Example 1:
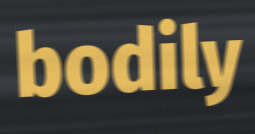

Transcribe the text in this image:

bodily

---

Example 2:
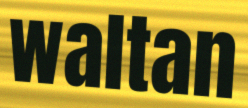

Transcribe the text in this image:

waltan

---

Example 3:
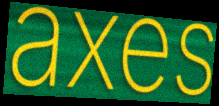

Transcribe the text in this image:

axes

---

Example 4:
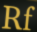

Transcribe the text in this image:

Rf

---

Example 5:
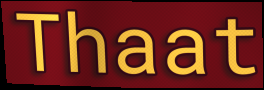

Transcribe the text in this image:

Thaat